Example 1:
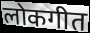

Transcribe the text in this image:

लोकगीत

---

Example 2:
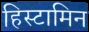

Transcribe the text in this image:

हिस्टामिन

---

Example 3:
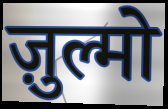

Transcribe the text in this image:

ज़ुल्मो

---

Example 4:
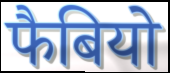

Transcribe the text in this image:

फैबियो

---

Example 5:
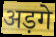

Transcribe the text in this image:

अड़गे